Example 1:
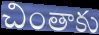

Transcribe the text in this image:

చింతాకు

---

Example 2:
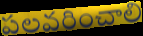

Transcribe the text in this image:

పలవరించాలి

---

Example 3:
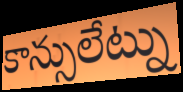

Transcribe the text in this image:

కాన్సులేట్ను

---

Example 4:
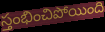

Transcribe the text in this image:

స్తంభించిపోయింది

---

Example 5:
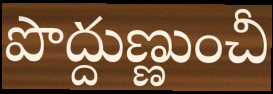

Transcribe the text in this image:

పొద్దుణ్ణుంచీ